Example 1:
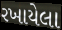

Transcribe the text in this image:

રખાયેલા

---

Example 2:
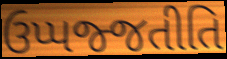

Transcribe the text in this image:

ઉપ્પજ્જતીતિ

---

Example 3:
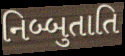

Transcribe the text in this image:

નિબ્બુતાતિ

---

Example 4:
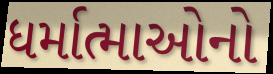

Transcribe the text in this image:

ધર્માત્માઓનો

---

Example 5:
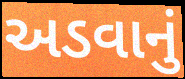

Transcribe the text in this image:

અડવાનું